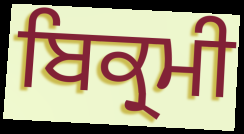
ਬਿਕ੍ਰਮੀ